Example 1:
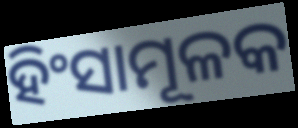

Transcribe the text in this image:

ହିଂସାମୂଳକ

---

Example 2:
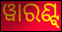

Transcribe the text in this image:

ୱାରଣ୍ଟ୍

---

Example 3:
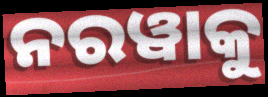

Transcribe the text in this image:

ନରୱାକୁ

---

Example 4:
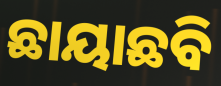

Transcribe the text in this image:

ଛାୟାଛବି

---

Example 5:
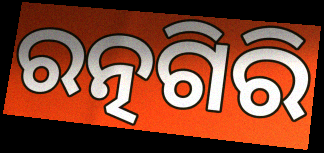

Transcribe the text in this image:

ରତ୍ନଗିରି